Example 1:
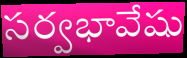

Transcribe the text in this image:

సర్వభావేషు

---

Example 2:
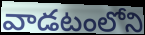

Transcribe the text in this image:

వాడటంలోని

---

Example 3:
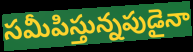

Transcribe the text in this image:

సమీపిస్తున్నపుడైనా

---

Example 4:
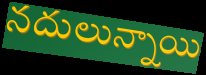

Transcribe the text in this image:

నదులున్నాయి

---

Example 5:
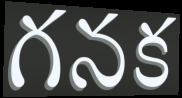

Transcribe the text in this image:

గనక